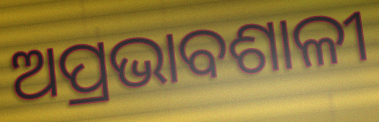
ଅପ୍ରଭାବଶାଳୀ